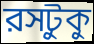
রসটুকু